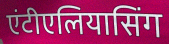
एंटीएलियासिंग